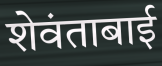
शेवंताबाई